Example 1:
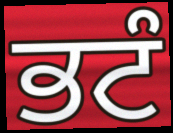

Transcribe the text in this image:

ਭਟੰ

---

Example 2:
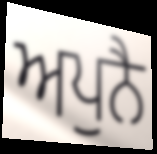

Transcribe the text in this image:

ਅਪੁਨੈ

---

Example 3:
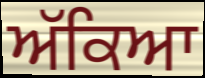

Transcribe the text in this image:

ਅੱਕਿਆ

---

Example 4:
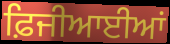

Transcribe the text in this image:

ਫ਼ਿਜੀਆਈਆਂ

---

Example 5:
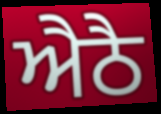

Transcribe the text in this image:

ਐਠੈ